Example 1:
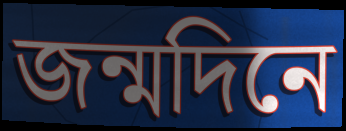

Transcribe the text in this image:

জন্মদিনে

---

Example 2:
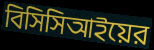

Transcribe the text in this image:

বিসিসিআইয়ের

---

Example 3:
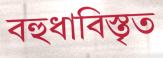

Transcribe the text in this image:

বহুধাবিস্তৃত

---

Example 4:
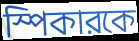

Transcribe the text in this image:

স্পিকারকে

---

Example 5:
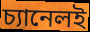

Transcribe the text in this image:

চ্যানেলই